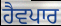
ਹੈਵਪਾਰ